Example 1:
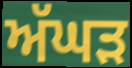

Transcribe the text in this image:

ਅੱਘੜ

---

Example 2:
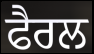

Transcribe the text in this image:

ਫੈਰਲ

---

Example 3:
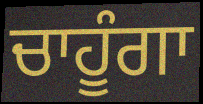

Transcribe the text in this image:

ਚਾਹੂੰਗਾ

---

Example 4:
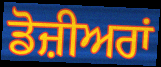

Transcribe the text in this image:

ਡੋਜ਼ੀਅਰਾਂ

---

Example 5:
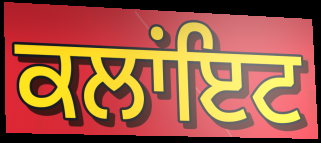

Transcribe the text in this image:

ਕਲਾਂਇਟ